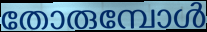
തോരുമ്പോൾ